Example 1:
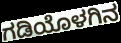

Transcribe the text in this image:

ಗಡಿಯೊಳಗಿನ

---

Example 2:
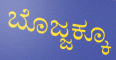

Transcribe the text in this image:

ಬೊಜ್ಜಕ್ಕೂ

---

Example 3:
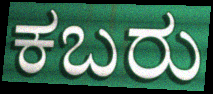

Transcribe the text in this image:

ಕಬರು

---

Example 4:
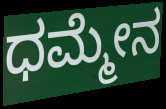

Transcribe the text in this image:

ಧಮ್ಮೇನ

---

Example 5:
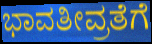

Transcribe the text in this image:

ಭಾವತೀವ್ರತೆಗೆ